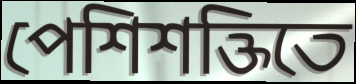
পেশিশক্তিতে